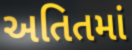
અતિતમાં